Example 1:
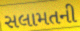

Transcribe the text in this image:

સલામતની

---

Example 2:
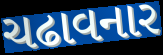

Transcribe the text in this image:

ચઢાવનાર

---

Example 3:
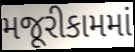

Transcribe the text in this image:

મજૂરીકામમાં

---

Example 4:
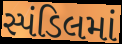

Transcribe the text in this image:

સ્પંડિલમાં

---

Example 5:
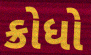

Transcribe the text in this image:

ક્રોધો